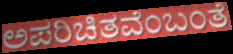
ಅಪರಿಚಿತವೆಂಬಂತೆ